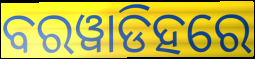
ବରୱାଡିହରେ